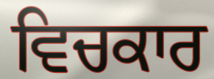
ਵਿਚਕਾਰ